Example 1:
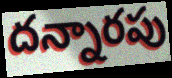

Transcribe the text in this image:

దన్నారపు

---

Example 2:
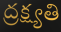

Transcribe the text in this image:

ద్రక్ష్యతి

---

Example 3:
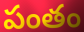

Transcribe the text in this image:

పంతం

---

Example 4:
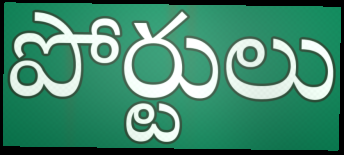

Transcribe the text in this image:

పోర్టులు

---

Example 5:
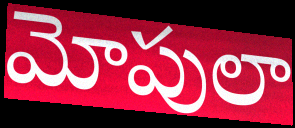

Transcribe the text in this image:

మోపులా